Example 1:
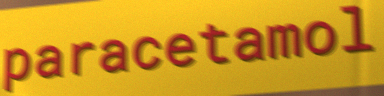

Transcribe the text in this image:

paracetamol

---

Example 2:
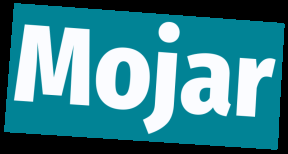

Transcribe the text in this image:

Mojar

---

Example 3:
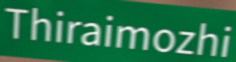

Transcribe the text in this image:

Thiraimozhi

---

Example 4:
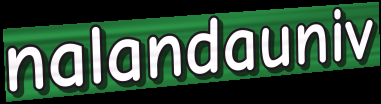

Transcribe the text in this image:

nalandauniv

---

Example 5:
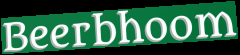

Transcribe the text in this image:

Beerbhoom